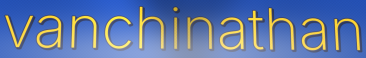
vanchinathan